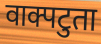
वाक्पटुता